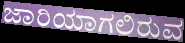
ಜಾರಿಯಾಗಲಿರುವ